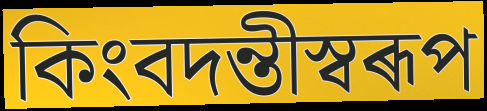
কিংবদন্তীস্বৰূপ